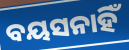
ବୟସନାହିଁ